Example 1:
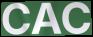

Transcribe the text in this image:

CAC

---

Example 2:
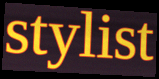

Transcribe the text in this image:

stylist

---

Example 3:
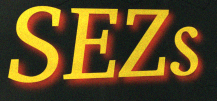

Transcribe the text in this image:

SEZs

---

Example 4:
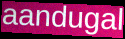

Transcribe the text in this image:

aandugal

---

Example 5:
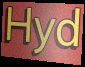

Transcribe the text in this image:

Hyd